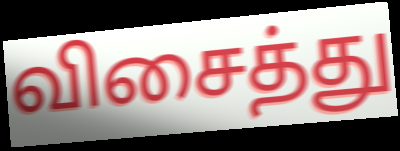
விசைத்து